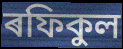
ৰফিকুল